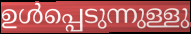
ഉൾപ്പെടുന്നുള്ളു